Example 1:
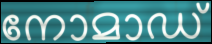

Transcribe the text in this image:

നോമാഡ്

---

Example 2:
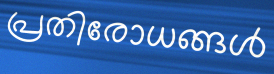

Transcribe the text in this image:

പ്രതിരോധങ്ങൾ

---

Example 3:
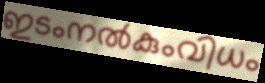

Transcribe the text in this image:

ഇടംനൽകുംവിധം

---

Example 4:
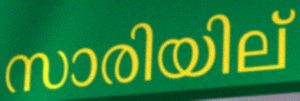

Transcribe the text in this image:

സാരിയില്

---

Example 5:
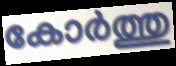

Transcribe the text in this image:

കോർത്തു